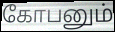
கோபனும்